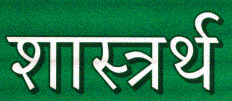
शास्त्रर्थ